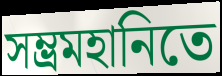
সম্ভ্রমহানিতে